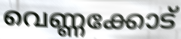
വെണ്ണക്കോട്